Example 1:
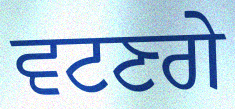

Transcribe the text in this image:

ਵਟਣਗੇ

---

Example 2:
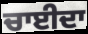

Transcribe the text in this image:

ਚਾਈਦਾ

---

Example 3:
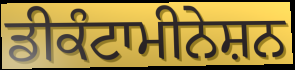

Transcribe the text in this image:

ਡੀਕੰਟਾਮੀਨੇਸ਼ਨ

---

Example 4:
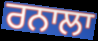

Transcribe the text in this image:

ਰਨਾਲਾ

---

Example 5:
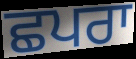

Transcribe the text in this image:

ਛਪਰਾ